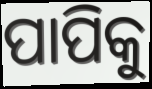
ପାପିକୁ